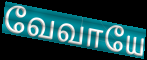
வேவாயே